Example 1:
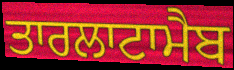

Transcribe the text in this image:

ਤਾਰਲਾਟਾਮੈਬ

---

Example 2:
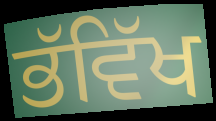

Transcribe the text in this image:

ਭੱਵਿੱਖ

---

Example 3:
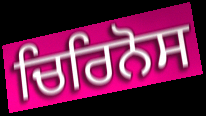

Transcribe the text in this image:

ਚਿਰਿਨੋਸ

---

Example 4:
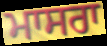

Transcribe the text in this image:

ਮਾਸਰਾ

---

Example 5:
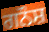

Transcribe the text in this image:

ਗਨੌਸ਼